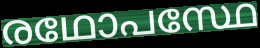
രഥോപസ്ഥേ